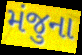
મંજુના